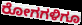
ರೋಗಗಳಿಗೂ